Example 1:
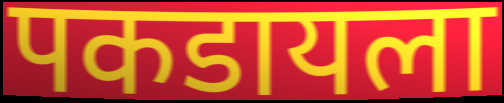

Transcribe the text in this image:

पकडायला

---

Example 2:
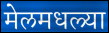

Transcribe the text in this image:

मेलमधल्या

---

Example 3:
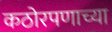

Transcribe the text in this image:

कठोरपणाच्या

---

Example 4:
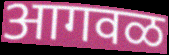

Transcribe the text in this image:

आगवळ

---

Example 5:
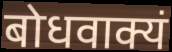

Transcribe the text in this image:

बोधवाक्यं